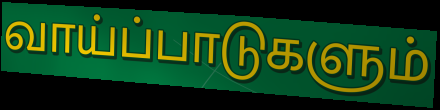
வாய்ப்பாடுகளும்